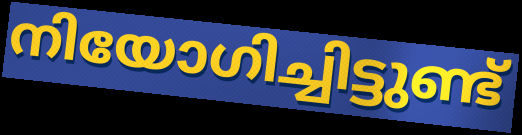
നിയോഗിച്ചിട്ടുണ്ട്